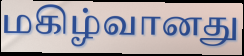
மகிழ்வானது